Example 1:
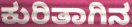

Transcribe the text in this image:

ಕುರಿತಾಗಿನ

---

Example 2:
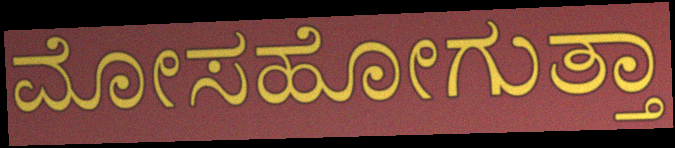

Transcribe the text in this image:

ಮೋಸಹೋಗುತ್ತಾ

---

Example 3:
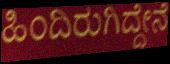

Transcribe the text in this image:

ಹಿಂದಿರುಗಿದ್ದೇನೆ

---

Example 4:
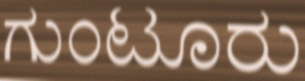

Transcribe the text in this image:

ಗುಂಟೂರು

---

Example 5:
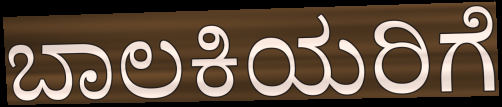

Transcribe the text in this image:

ಬಾಲಕಿಯರಿಗೆ